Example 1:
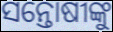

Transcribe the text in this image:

ସନ୍ତୋଷୀଙ୍କୁ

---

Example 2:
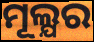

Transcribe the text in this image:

ମୂଲ୍ଯର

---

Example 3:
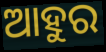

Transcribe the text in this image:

ଆହୁର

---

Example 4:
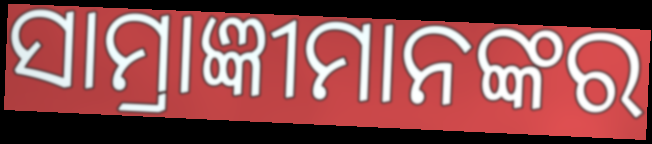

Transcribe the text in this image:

ସାମ୍ରାଜ୍ଞୀମାନଙ୍କର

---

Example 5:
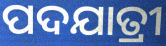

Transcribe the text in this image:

ପଦଯାତ୍ରୀ